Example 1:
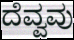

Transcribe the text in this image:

ದೆವ್ವವು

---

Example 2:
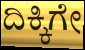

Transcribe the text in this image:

ದಿಕ್ಕಿಗೇ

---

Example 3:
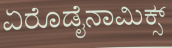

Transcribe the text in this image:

ಏರೊಡೈನಾಮಿಕ್ಸ್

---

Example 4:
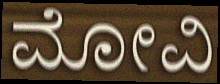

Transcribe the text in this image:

ಮೋವಿ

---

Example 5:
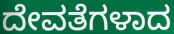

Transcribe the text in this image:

ದೇವತೆಗಳಾದ